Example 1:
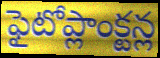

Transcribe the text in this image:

ఫైటోప్లాంక్టన్ల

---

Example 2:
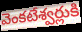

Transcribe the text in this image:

వెంకటేశ్వర్లుకి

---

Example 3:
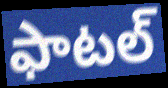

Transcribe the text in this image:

ఫాటల్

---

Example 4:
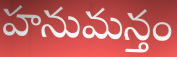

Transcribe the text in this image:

హనుమన్తం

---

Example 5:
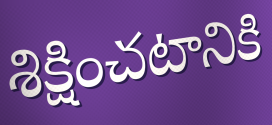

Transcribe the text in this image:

శిక్షించటానికి